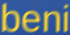
beni